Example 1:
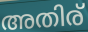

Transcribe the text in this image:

അതിര്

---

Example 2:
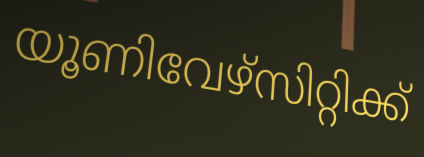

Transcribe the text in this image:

യൂണിവേഴ്സിറ്റിക്ക്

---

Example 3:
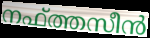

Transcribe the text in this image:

നഫ്ത്തസീൻ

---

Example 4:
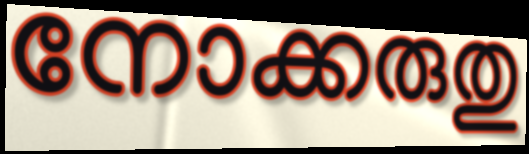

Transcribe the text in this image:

നോക്കരുതു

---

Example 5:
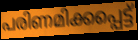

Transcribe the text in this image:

പരിണമിക്കപ്പെട്ട്